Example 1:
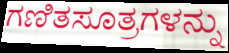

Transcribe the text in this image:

ಗಣಿತಸೂತ್ರಗಳನ್ನು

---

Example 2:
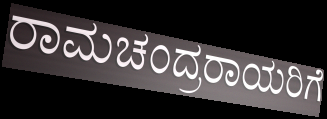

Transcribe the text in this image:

ರಾಮಚಂದ್ರರಾಯರಿಗೆ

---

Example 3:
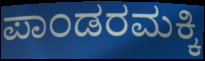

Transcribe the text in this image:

ಪಾಂಡರಮಕ್ಕಿ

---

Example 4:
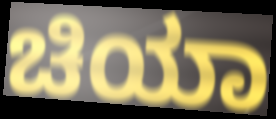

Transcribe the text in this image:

ಚಿಯಾ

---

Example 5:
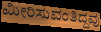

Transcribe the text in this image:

ಮೀರಿಸುವಂತಿದ್ದವು